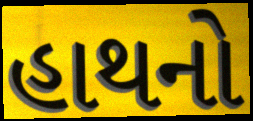
હાથનો